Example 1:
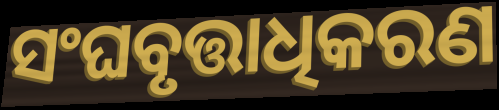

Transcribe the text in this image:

ସଂଘବୃତ୍ତାଧିକରଣ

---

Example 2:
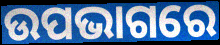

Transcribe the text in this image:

ଉପଭାଗରେ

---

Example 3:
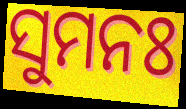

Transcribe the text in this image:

ସୁମନଃ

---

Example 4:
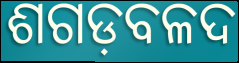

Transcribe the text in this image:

ଶଗଡ଼ବଳଦ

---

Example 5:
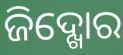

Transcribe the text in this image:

ଜିଦ୍ଖୋର